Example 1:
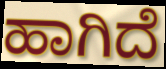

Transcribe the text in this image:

ಹಾಗಿದೆ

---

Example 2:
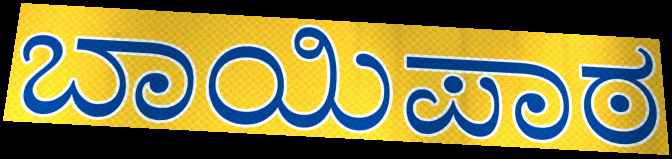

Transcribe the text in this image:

ಬಾಯಿಪಾಠ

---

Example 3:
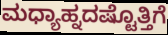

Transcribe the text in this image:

ಮಧ್ಯಾಹ್ನದಷ್ಟೊತ್ತಿಗೆ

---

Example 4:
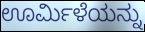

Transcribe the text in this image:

ಊರ್ಮಿಳೆಯನ್ನು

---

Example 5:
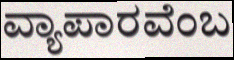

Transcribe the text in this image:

ವ್ಯಾಪಾರವೆಂಬ